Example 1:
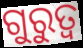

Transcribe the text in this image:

ଗୁରୁତ୍ୱ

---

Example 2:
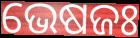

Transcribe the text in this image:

ଭେଷଜଃ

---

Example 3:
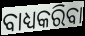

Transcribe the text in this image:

ବାଧ୍ୟକରିବା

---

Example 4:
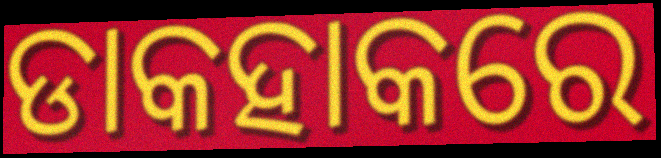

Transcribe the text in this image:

ଡାକହାକରେ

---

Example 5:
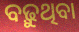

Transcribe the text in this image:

ବଢ଼ୁଥିବା